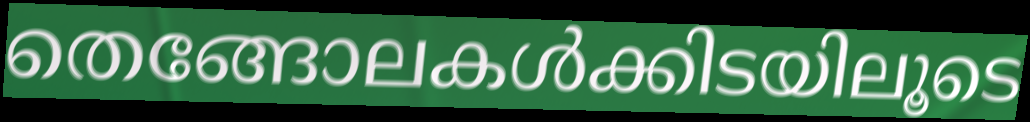
തെങ്ങോലകൾക്കിടയിലൂടെ